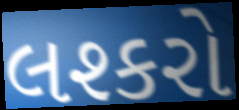
લશ્કરો